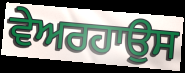
ਵੇਅਰਹਾਉਸ